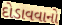
દોડાવવાનો